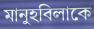
মানুহবিলাকে